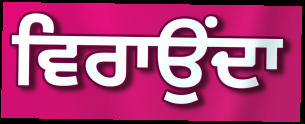
ਵਿਰਾਉਂਦਾ